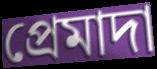
প্ৰেমাদা